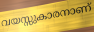
വയസ്സുകാരനാണ്